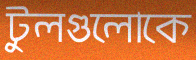
টুলগুলোকে